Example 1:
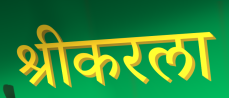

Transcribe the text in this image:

श्रीकरला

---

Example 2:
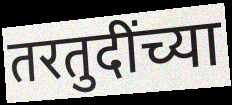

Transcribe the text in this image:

तरतुदींच्या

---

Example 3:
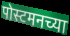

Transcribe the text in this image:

पोस्टमनच्या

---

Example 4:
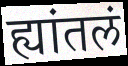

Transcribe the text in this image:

ह्यांतलं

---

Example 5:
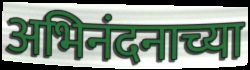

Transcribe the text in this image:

अभिनंदनाच्या